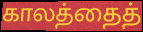
காலத்தைத்